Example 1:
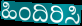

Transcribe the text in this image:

ಹಿಂದಿರಿಸಿ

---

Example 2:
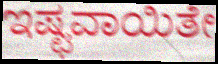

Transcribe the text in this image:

ಇಷ್ಟವಾಯಿತೇ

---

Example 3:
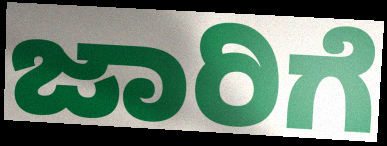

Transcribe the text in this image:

ಜಾರಿಗೆ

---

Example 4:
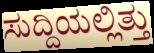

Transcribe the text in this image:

ಸುದ್ದಿಯಲ್ಲಿತ್ತು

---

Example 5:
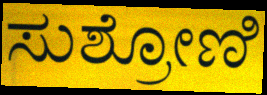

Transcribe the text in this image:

ಸುಶ್ರೋಣಿ